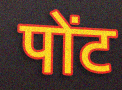
पोंट